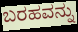
ಬರಹವನ್ನು